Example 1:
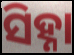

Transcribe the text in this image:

ସିହ୍ନା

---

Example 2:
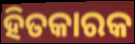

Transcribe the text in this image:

ହିତକାରକ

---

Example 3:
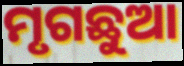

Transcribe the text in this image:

ମୃଗଛୁଆ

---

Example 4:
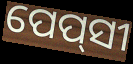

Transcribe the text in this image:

ପେପ୍‌ସୀ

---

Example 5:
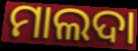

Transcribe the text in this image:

ମାଲଦା